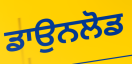
ਡਾਉਨਲੋਡ